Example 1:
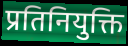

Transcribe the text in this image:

प्रतिनियुक्ति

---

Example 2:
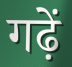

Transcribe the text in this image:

गढ़ें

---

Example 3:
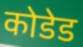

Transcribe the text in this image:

कोडेड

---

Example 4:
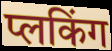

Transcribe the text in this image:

प्लकिंग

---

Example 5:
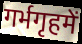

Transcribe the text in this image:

गर्भगृहमें